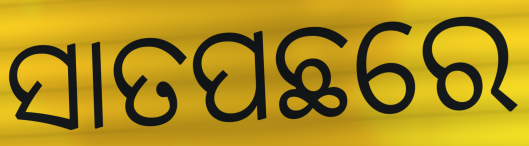
ସାତପଛରେ